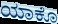
ಯಾಕೊ